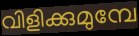
വിളിക്കുമുമ്പേ